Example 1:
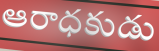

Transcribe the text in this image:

ఆరాధకుడు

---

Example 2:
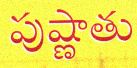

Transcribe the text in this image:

పుష్ణాతు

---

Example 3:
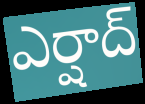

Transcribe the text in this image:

ఎర్షాద్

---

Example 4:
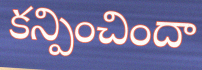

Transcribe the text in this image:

కన్పించిందా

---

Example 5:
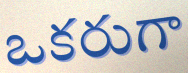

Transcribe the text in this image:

ఒకరుగా